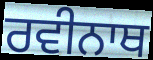
ਰਵੀਨਾਥ